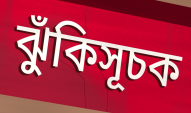
ঝুঁকিসূচক